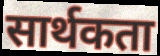
सार्थकता